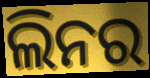
ଲିନର